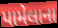
પામેલાના